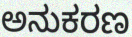
ಅನುಕರಣ